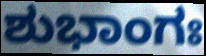
ಶುಭಾಂಗಃ